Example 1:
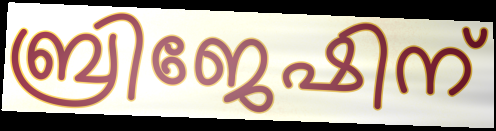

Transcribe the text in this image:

ബ്രിജേഷിന്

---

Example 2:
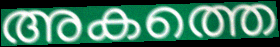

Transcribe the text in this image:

അകത്തെ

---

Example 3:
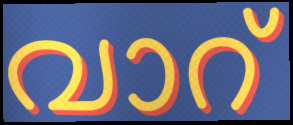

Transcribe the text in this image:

വാറ്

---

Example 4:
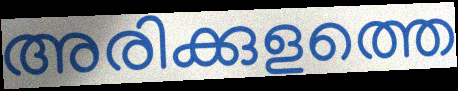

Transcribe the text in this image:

അരിക്കുളത്തെ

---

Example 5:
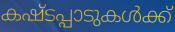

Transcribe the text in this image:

കഷ്ടപ്പാടുകൾക്ക്